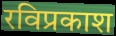
रविप्रकाश